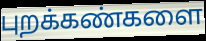
புறக்கண்களை